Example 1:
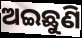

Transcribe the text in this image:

ଅଇଛୁଣି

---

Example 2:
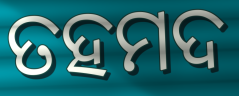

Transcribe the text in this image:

ତହମଦ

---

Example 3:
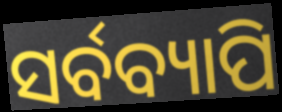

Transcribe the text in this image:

ସର୍ବବ୍ୟାପି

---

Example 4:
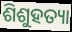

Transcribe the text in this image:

ଶିଶୁହତ୍ୟା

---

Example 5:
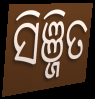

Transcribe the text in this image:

ସିଞ୍ଜିତ